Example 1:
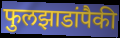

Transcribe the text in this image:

फुलझाडांपैकी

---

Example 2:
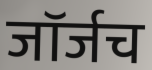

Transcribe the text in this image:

जॉर्जच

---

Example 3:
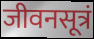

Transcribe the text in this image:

जीवनसूत्रं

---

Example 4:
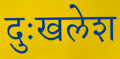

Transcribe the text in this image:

दुःखलेश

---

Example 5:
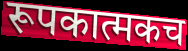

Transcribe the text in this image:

रूपकात्मकच